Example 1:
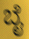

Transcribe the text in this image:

ಬೈ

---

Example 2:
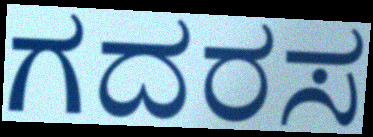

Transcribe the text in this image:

ಗದರಸ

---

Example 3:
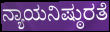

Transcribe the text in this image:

ನ್ಯಾಯನಿಷ್ಠುರತೆ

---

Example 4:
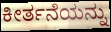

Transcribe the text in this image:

ಕೀರ್ತನೆಯನ್ನು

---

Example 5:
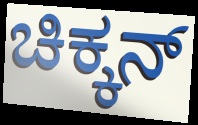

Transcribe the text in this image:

ಚಿಕ್ಕನ್